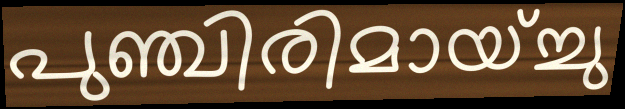
പുഞ്ചിരിമായ്ച്ചു